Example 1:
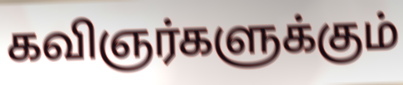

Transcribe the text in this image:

கவிஞர்களுக்கும்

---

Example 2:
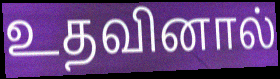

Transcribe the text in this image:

உதவினால்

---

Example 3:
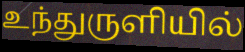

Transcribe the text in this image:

உந்துருளியில்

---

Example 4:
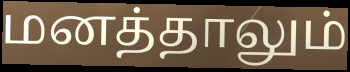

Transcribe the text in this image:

மனத்தாலும்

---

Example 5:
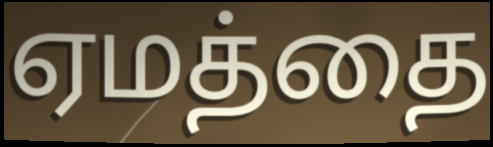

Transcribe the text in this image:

ஏமத்தை